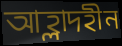
আহ্লাদহীন